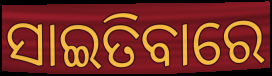
ସାଇତିବାରେ